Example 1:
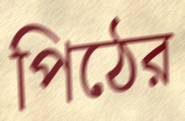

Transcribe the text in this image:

পিঠের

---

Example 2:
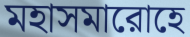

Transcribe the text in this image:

মহাসমারোহে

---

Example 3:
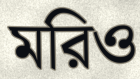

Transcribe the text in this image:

মরিও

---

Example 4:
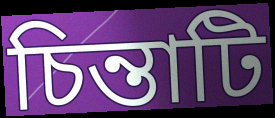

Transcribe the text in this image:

চিন্তাটি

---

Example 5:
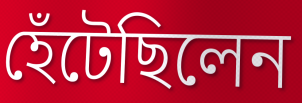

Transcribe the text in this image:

হেঁটেছিলেন